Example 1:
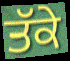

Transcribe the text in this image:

ਤੱਕੇ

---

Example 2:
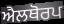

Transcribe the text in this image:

ਐਲਥੋਰਪ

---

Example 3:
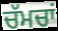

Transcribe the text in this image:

ਚੱਮਚਾਂ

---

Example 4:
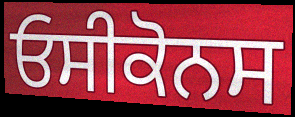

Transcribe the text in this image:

ਓਸੀਕੋਨਸ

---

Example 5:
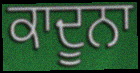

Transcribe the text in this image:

ਕਾਦੂਨਾ